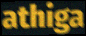
athiga